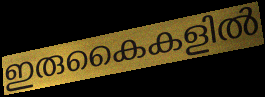
ഇരുകൈകളിൽ